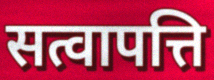
सत्वापत्ति